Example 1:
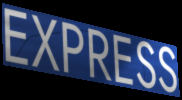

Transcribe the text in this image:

EXPRESS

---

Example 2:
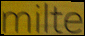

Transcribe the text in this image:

milte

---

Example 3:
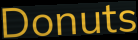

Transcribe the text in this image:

Donuts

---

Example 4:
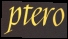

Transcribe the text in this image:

ptero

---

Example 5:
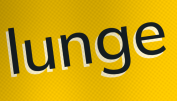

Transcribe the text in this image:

lunge